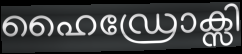
ഹൈഡ്രോക്സി